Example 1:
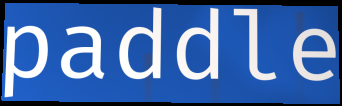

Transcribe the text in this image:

paddle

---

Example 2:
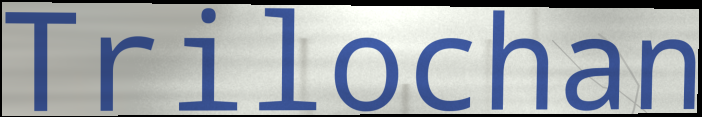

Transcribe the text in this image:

Trilochan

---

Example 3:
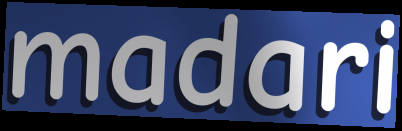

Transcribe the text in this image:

madari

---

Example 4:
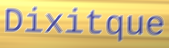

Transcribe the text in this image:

Dixitque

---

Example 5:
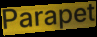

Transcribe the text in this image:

Parapet